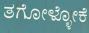
ತಗೋಳ್ಳೋಕೆ